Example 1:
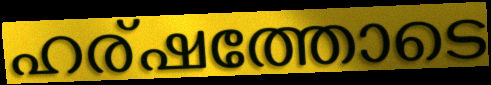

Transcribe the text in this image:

ഹര്ഷത്തോടെ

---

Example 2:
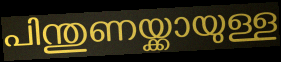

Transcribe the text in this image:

പിന്തുണയ്ക്കായുള്ള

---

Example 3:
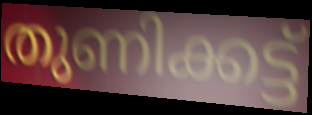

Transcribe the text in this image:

തുണിക്കട്ട്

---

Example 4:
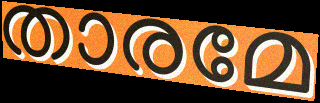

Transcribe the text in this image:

താരമേ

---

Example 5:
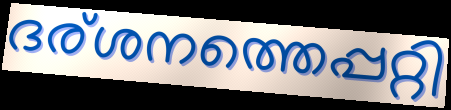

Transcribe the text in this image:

ദര്ശനത്തെപ്പറ്റി